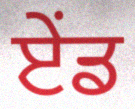
ਏੰਡ